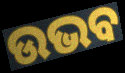
ଉଭବ